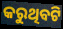
କରୁଥିବଟି